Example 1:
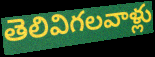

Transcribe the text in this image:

తెలివిగలవాళ్లు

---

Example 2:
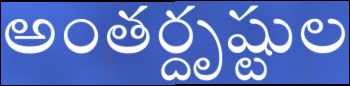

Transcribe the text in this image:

అంతర్దృష్టుల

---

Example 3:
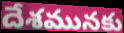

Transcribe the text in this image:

దేశమునకు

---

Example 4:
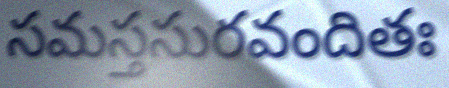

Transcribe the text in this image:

సమస్తసురవందితః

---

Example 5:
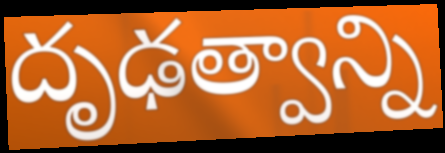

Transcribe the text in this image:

దృఢత్వాన్ని